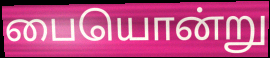
பையொன்று